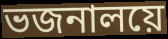
ভজনালয়ে